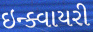
ઇન્ક્વાયરી